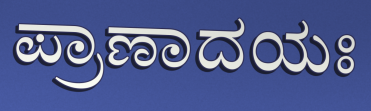
ಪ್ರಾಣಾದಯಃ